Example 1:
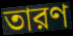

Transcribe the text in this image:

তারণ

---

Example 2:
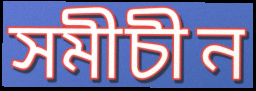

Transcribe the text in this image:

সমীচীন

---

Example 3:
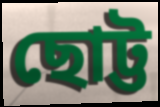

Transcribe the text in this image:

ছোট্ট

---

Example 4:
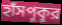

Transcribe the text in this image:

হাঁসপুকুর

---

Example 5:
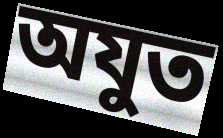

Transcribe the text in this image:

অযুত